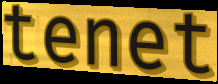
tenet